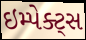
ઇમ્પેક્ટ્સ